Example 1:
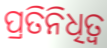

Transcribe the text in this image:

ପ୍ରତିନିଧିତ୍ବ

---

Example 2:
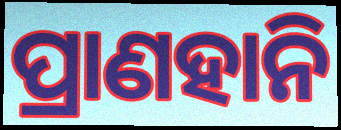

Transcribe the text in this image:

ପ୍ରାଣହାନି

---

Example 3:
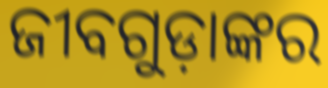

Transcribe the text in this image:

ଜୀବଗୁଡ଼ାଙ୍କର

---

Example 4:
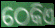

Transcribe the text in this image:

ଠେକିଏ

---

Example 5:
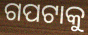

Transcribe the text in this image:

ଗପଟାକୁ